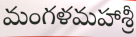
మంగళమహాశ్రీ